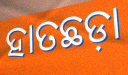
ହାତଛଡ଼ା